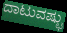
ದಾಟುವಷ್ಟು